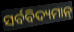
ସର୍ବବିଦ୍ୟମାନ୍